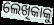
ଲେଖିକାକୁ